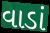
વાડાં